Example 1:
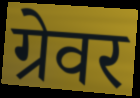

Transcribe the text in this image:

ग्रेवर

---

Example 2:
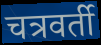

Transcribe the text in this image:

चत्रवर्ती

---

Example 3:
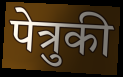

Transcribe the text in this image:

पेत्रुकी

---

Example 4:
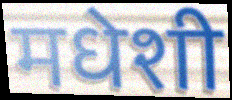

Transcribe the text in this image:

मधेशी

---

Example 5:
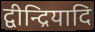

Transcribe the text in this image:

द्वीन्द्रियादि